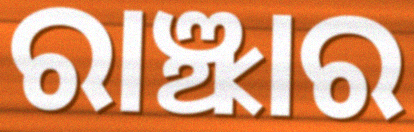
ରାଞ୍ଝାର